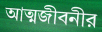
আত্মজীবনীর